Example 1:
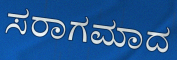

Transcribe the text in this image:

ಸರಾಗಮಾದ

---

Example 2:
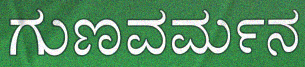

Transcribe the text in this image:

ಗುಣವರ್ಮನ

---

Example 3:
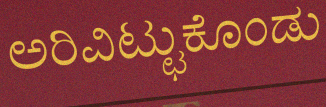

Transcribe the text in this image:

ಅರಿವಿಟ್ಟುಕೊಂಡು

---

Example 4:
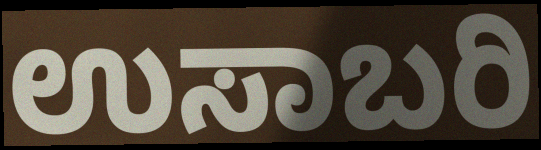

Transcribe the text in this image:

ಉಸಾಬರಿ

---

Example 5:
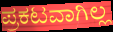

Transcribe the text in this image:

ಪ್ರಕಟವಾಗಿಲ್ಲ